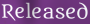
Released